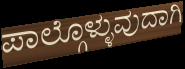
ಪಾಲ್ಗೊಳ್ಳುವುದಾಗಿ